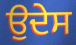
ਉਦੇਸ